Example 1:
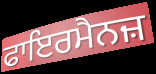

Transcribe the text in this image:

ਫਾਇਰਮੈਨਜ਼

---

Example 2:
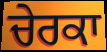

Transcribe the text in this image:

ਚੇਰਕਾ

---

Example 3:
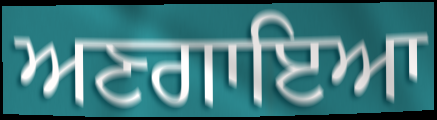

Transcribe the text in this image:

ਅਣਗਾਇਆ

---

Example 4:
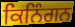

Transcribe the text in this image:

ਕਿਨਿੰਗਨ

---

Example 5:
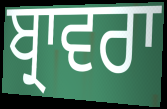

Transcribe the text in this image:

ਬ੍ਰਾਵਰਾ